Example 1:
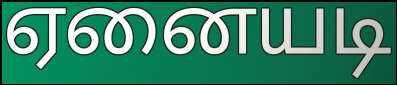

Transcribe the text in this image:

ஏனையடி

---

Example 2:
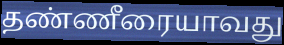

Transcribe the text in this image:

தண்ணீரையாவது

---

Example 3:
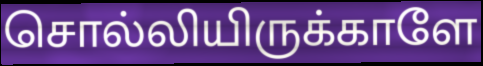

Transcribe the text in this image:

சொல்லியிருக்காளே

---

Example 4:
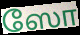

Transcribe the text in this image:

ஸோ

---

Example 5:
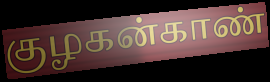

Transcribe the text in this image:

குழகன்காண்